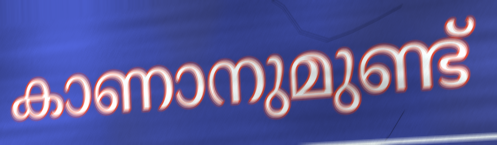
കാണാനുമുണ്ട്